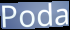
Poda